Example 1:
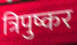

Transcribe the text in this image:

त्रिपुष्कर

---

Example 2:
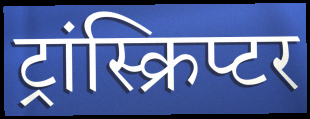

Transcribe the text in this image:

ट्रांस्क्रिप्टर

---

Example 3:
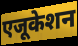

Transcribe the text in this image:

एजूकेशन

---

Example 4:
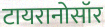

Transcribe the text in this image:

टायरानोसॉर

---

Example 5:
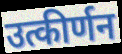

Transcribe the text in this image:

उत्कीर्णन